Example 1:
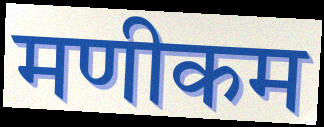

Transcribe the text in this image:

मणीकम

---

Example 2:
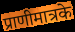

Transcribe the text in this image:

प्राणीमात्रके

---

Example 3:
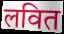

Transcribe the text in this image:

लवित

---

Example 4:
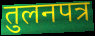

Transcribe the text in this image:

तुलनपत्र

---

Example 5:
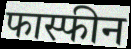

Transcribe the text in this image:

फास्फीन